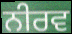
ਨੀਰਵ